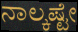
ನಾಲ್ಕಷ್ಟೇ